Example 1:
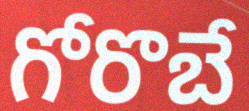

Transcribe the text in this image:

గోరొబే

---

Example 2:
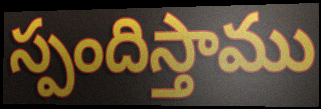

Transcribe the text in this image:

స్పందిస్తాము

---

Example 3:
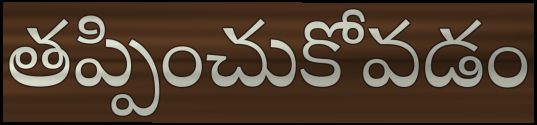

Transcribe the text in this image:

తప్పించుకోవడం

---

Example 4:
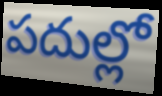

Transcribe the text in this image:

పదుల్లో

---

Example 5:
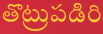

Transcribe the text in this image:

తొట్రుపడిరి